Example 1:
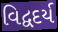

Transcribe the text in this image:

વિદ્વદર્ય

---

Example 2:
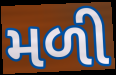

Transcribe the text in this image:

મળી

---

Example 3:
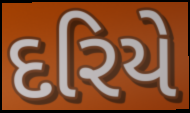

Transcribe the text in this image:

દરિયે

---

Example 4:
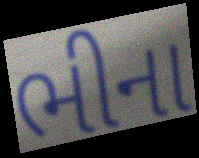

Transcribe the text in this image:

ભીના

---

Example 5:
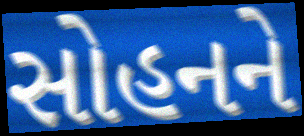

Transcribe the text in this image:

સોહનને